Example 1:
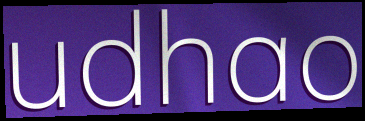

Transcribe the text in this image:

udhao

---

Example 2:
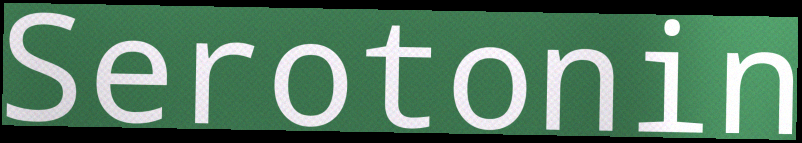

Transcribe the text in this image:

Serotonin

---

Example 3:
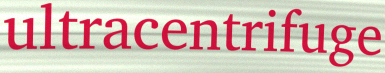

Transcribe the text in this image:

ultracentrifuge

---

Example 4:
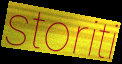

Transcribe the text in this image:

storiti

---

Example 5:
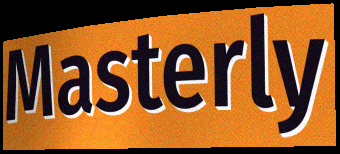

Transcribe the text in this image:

Masterly